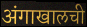
अंगाखालची